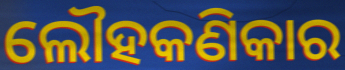
ଲୌହକଣିକାର